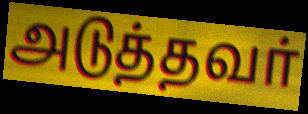
அடுத்தவர்